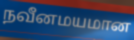
நவீனமயமான